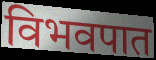
विभवपात